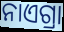
ନାଏଗ୍ରା